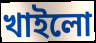
খাইলো